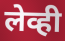
लेव्ही